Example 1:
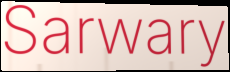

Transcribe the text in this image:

Sarwary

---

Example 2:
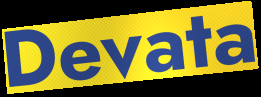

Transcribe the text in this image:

Devata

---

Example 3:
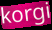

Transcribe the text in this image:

korgi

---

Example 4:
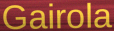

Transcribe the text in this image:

Gairola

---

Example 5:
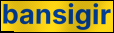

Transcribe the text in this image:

bansigir